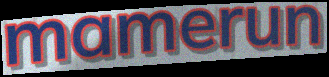
mamerun